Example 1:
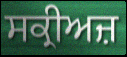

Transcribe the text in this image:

ਸਕ੍ਰੀਅਜ਼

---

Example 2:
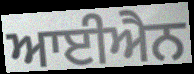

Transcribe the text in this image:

ਆਈਐਨ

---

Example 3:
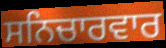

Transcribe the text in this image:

ਸਨਿਚਾਰਵਾਰ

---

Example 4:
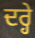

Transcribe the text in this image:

ਦਰ੍ਹੇ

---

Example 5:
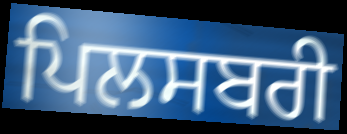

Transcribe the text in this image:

ਪਿਲਸਬਰੀ